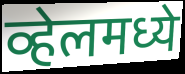
व्हेलमध्ये